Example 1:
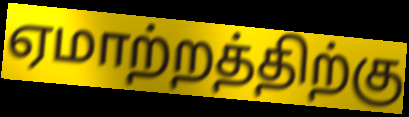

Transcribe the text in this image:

ஏமாற்றத்திற்கு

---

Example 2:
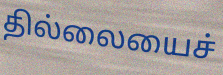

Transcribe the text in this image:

தில்லையைச்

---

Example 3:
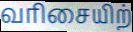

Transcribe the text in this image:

வரிசையிற்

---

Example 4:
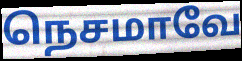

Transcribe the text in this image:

நெசமாவே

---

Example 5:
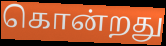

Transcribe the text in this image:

கொன்றது